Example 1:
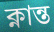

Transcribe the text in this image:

ক্নান্ত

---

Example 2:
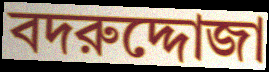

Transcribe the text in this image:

বদরুদ্দোজা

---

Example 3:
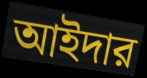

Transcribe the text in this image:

আইদার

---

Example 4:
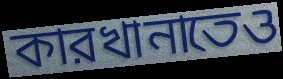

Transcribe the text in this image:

কারখানাতেও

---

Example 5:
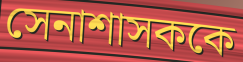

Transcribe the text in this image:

সেনাশাসককে